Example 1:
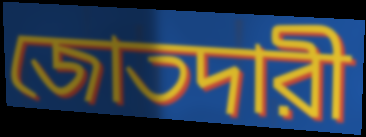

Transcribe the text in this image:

জোতদারী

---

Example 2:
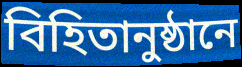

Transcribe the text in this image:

বিহিতানুষ্ঠানে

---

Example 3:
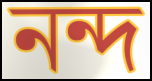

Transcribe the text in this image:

নন্দ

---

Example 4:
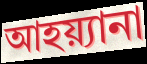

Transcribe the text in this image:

আহয়্যানা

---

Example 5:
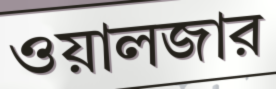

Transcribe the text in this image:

ওয়ালজার